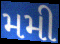
મમી